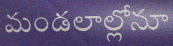
మండలాల్లోనూ